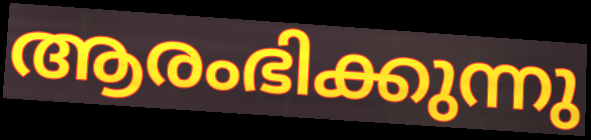
ആരംഭിക്കുന്നു